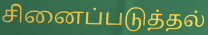
சினைப்படுத்தல்